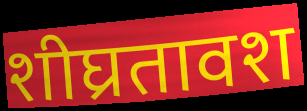
शीघ्रतावश